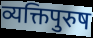
व्यक्तिपुरुष